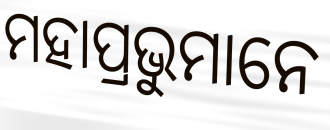
ମହାପ୍ରଭୁମାନେ